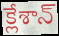
క్లేశాన్